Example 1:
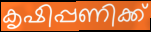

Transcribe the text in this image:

കൃഷിപ്പണിക്ക്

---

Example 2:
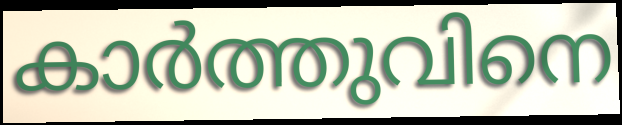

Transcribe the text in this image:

കാർത്തുവിനെ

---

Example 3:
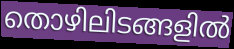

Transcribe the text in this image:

തൊഴിലിടങ്ങളിൽ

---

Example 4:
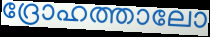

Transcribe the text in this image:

ദ്രോഹത്താലോ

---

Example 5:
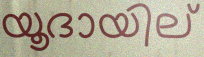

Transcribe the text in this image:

യൂദായില്